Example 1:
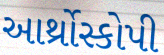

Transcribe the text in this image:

આર્થ્રોસ્કોપી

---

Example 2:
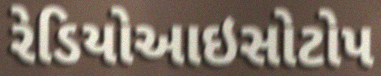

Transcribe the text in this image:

રેડિયોઆઇસોટોપ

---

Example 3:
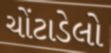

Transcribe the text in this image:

ચોંટાડેલો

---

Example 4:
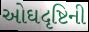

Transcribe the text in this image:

ઓઘદૃષ્ટિની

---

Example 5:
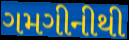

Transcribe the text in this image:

ગમગીનીથી